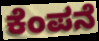
ಕೆಂಪನೆ